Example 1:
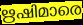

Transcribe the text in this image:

ഋഷിമാരെ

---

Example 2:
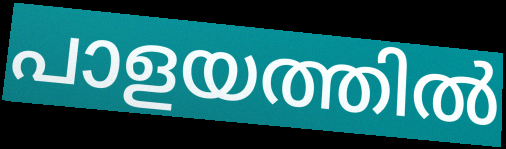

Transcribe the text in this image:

പാളയത്തിൽ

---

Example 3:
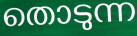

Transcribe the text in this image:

തൊടുന്ന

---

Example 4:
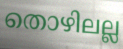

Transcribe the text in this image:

തൊഴിലല്ല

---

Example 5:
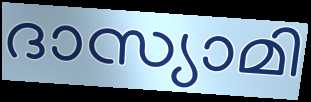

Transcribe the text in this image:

ദാസ്യാമി